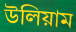
উলিয়াম